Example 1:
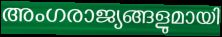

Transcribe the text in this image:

അംഗരാജ്യങ്ങളുമായി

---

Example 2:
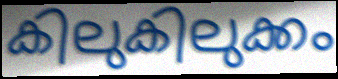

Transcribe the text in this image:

കിലുകിലുക്കം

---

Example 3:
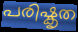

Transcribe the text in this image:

പരിഷ്കൃത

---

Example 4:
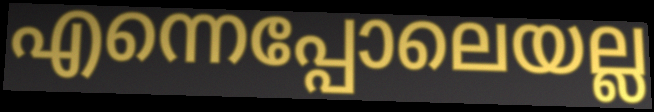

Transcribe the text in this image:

എന്നെപ്പോലെയല്ല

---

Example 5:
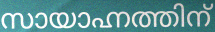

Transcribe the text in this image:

സായാഹ്നത്തിന്